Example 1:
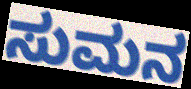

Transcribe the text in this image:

ಸುಮನ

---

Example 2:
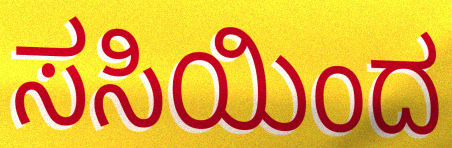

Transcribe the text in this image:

ಸಸಿಯಿಂದ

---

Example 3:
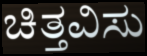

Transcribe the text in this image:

ಚಿತ್ತವಿಸು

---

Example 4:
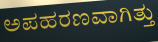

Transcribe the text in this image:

ಅಪಹರಣವಾಗಿತ್ತು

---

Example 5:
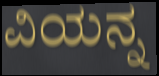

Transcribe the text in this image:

ವಿಯನ್ನ